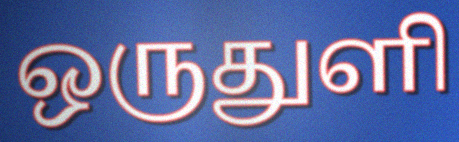
ஒருதுளி